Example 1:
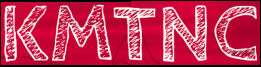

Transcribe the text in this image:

KMTNC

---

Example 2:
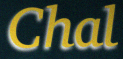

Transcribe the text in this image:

Chal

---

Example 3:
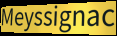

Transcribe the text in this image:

Meyssignac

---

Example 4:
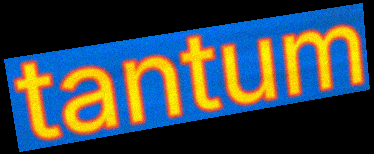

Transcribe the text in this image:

tantum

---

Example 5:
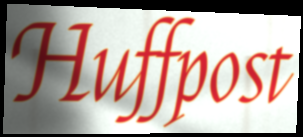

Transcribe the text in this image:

Huffpost